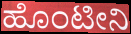
ಹೊಂಟೀನಿ